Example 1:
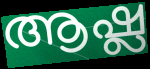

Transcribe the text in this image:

ആഷ്ല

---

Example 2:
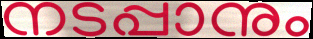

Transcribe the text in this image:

നടപ്പാനും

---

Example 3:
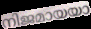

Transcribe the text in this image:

നിജമായയാ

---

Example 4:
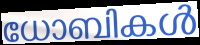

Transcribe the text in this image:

ധോബികൾ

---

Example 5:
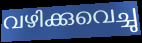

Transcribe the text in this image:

വഴിക്കുവെച്ചു